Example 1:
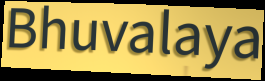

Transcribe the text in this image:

Bhuvalaya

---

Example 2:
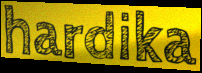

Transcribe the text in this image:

hardika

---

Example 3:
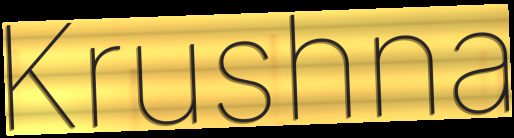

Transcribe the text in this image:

Krushna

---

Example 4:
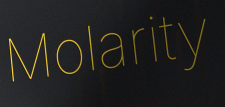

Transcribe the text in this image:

Molarity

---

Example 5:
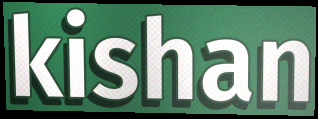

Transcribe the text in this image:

kishan